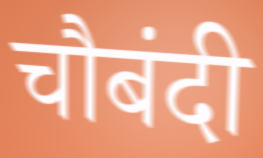
चौबंदी